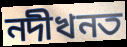
নদীখনত